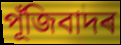
পূঁজিবাদৰ